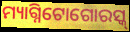
ମ୍ୟାଗ୍ନିଟୋଗୋରସ୍କ୍